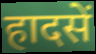
हादसें